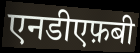
एनडीएफ़बी